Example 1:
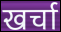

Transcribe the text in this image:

खर्चा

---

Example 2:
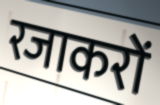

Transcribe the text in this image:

रजाकरों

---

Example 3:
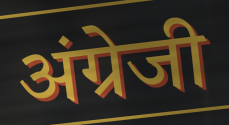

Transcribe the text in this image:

अंग्रेजी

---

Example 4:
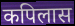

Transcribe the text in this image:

कपिलास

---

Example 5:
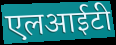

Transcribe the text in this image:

एलआईटी